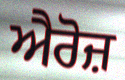
ਐਰੋਜ਼